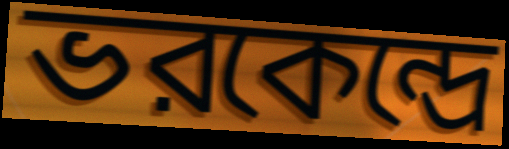
ভরকেন্দ্রে